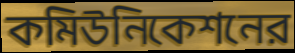
কমিউনিকেশনের